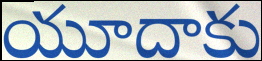
యూదాకు